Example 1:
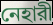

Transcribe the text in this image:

নেহারী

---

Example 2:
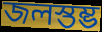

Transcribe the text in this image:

জলস্তম্ভ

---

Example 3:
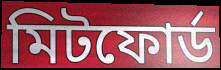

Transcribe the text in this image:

মিটফোর্ড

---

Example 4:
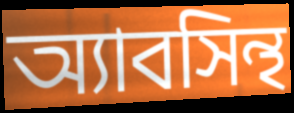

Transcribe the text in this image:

অ্যাবসিন্থ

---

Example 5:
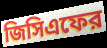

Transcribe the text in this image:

জিসিএফের